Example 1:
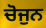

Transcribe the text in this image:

ਚੋਜੁਨ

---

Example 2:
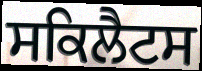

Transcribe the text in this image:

ਸਕਿਲੈਟਸ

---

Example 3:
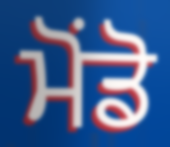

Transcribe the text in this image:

ਮੋਂਡੋ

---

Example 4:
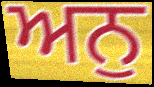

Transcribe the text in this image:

ਅਨੁ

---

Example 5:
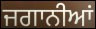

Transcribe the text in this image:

ਜਗਾਨੀਆਂ